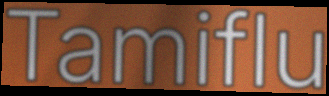
Tamiflu